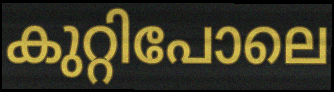
കുറ്റിപോലെ